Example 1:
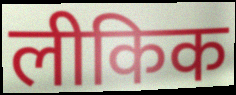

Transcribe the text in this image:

लीकिक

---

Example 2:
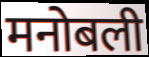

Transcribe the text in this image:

मनोबली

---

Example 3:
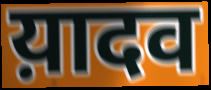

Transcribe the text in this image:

य़ादव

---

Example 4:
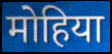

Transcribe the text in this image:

मोहिया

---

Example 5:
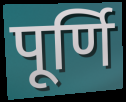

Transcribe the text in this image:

पूर्णि